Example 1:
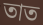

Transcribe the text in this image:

তাত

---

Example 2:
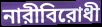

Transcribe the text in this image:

নারীবিরোধী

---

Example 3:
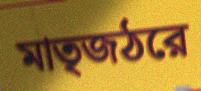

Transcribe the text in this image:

মাতৃজঠরে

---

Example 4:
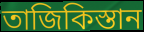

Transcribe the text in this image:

তাজিকিস্তান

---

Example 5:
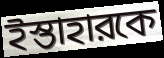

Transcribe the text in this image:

ইস্তাহারকে